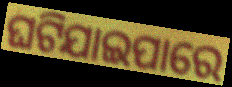
ଘଟିଯାଇପାରେ